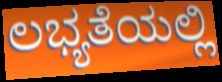
ಲಭ್ಯತೆಯಲ್ಲಿ